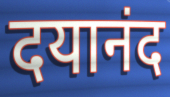
दयानंद